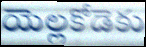
యెల్లకోడెకు